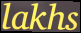
lakhs